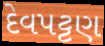
દેવપટ્ટણ